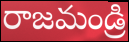
రాజమండ్రి